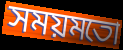
সময়মতো